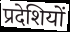
प्रदेशियों